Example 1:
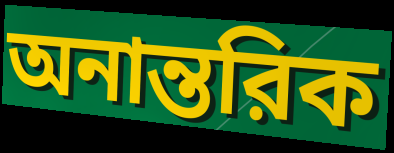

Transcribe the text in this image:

অনান্তরিক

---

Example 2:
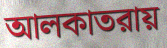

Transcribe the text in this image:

আলকাতরায়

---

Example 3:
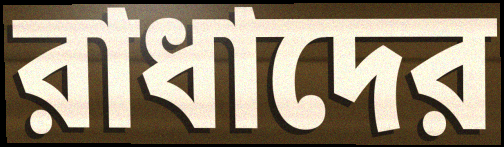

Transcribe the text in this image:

রাধাদের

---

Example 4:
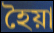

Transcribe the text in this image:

হৈয়া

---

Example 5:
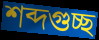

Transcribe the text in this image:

শব্দগুচ্ছ